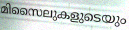
മിസൈലുകളുടെയും